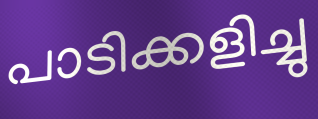
പാടിക്കളിച്ചു